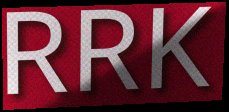
RRK